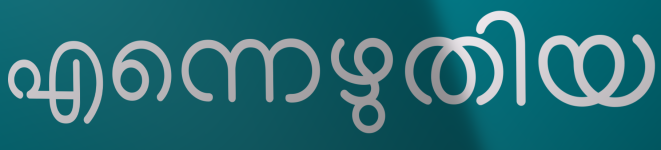
എന്നെഴുതിയ